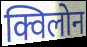
क्विलोन